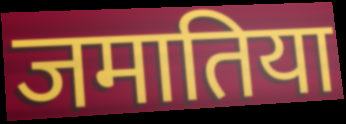
जमातिया